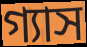
গ্যাস